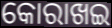
କୋରାଖଇ